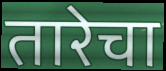
तारेचा